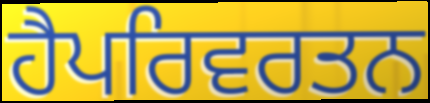
ਹੈਪਰਿਵਰਤਨ